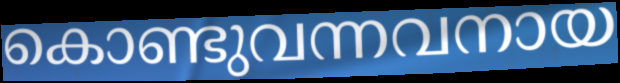
കൊണ്ടുവന്നവനായ